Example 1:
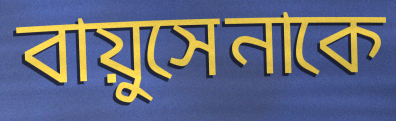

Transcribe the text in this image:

বায়ুসেনাকে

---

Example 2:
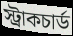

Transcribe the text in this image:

স্ট্রাকচার্ড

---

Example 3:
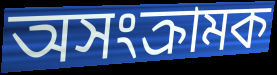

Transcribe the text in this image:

অসংক্রামক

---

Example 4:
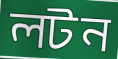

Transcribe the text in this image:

লটন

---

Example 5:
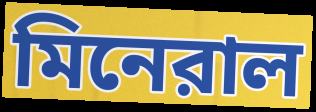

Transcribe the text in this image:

মিনেরাল